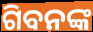
ଗିବନଙ୍କ